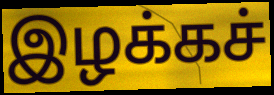
இழக்கச்